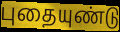
புதையுண்டு